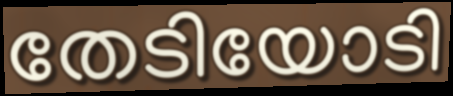
തേടിയോടി